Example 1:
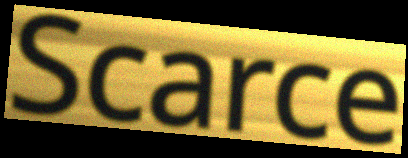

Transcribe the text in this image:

Scarce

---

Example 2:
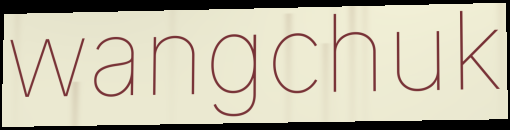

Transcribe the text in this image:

wangchuk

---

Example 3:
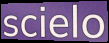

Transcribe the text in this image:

scielo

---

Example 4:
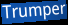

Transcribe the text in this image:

Trumper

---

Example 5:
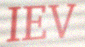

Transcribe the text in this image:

IEV